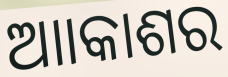
ଆାକାଶର